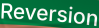
Reversion